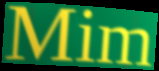
Mim